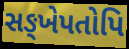
સઙ્ખેપતોપિ